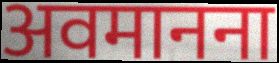
अवमानना